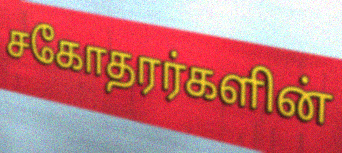
சகோதரர்களின்